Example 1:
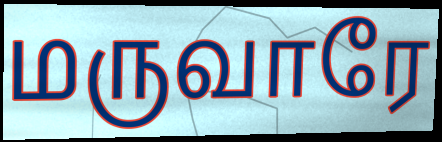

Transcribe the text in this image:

மருவாரே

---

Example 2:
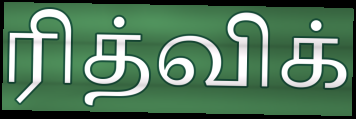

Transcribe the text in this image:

ரித்விக்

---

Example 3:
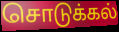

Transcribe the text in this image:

சொடுக்கல்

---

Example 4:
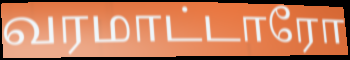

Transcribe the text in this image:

வரமாட்டாரோ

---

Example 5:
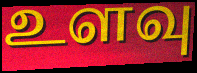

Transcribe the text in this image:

உளவு